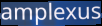
amplexus